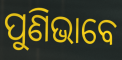
ପୁଣିଭାବେ